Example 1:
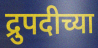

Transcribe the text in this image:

द्रुपदीच्या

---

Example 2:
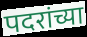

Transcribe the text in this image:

पदरांच्या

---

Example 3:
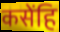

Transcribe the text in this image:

कसेंहि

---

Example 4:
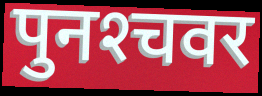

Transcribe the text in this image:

पुनश्चवर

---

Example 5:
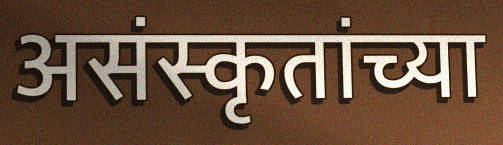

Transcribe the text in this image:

असंस्कृतांच्या